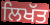
ਲਿਖੱਤ